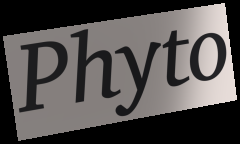
Phyto